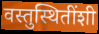
वस्तुस्थितींशी